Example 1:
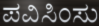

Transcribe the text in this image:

ಪವಿಸಿಂಸು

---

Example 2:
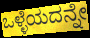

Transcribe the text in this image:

ಒಳ್ಳೆಯದನ್ನೇ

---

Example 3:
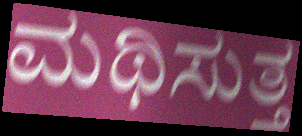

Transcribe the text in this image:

ಮಥಿಸುತ್ತ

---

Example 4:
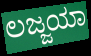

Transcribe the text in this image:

ಲಜ್ಜಯಾ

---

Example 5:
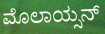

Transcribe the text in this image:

ಮೊಲಾಯ್ಸನ್